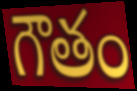
గౌతం